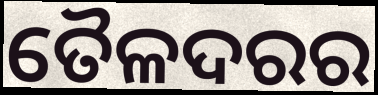
ତୈଳଦରର